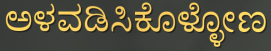
ಅಳವಡಿಸಿಕೊಳ್ಳೋಣ